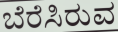
ಬೆರೆಸಿರುವ